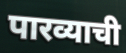
पारव्याची